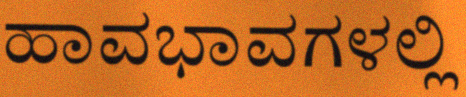
ಹಾವಭಾವಗಳಲ್ಲಿ